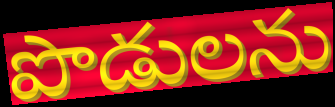
పొడులను